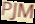
PJM